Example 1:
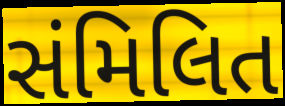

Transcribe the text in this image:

સંમિલિત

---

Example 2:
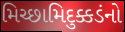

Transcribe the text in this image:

મિચ્છામિદુક્કડંનો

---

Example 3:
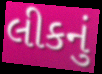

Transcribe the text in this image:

લીકનું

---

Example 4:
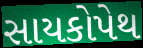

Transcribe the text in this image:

સાયકોપેથ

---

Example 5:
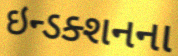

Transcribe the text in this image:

ઇન્ડક્શનના